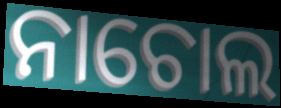
ନାଚୋଲ